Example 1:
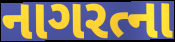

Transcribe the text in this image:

નાગરત્ના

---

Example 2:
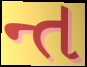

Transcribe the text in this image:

ન્ત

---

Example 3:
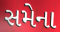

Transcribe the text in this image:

સમેના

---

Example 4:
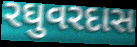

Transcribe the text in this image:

રઘુવરદાસ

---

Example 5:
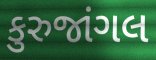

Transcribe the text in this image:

કુરુજાંગલ